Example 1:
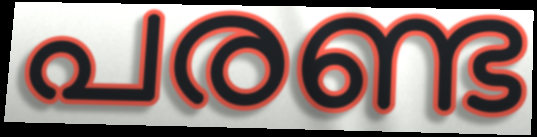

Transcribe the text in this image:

പരണ്ട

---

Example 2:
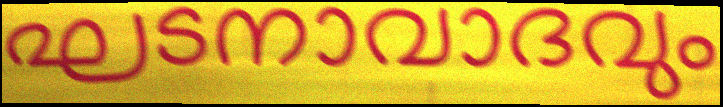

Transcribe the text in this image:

ഘടനാവാദവും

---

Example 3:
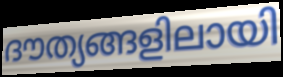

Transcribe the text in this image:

ദൗത്യങ്ങളിലായി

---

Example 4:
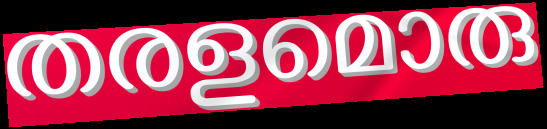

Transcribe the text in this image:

തരളമൊരു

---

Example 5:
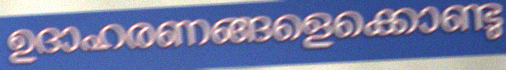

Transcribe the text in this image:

ഉദാഹരണങ്ങളെക്കൊണ്ടു